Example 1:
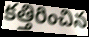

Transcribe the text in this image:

కత్తిరించిన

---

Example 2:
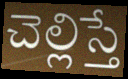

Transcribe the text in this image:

చెల్లిస్తే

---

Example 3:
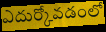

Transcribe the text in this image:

ఎదుర్కోవడంలో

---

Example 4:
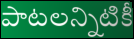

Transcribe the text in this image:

పాటలన్నిటికీ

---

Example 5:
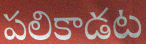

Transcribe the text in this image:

పలికాడట